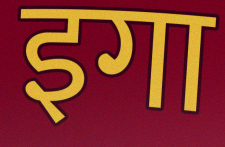
इगा